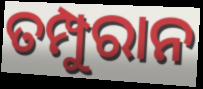
ତମ୍ପୁରାନ